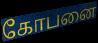
கோபனை